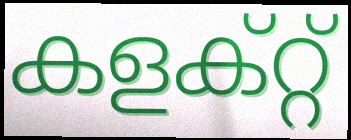
കളക്റ്റ്